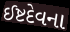
ઈષ્ટદેવના